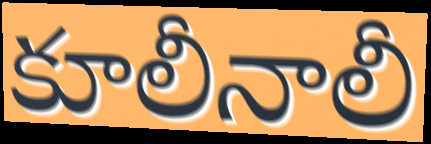
కూలీనాలీ